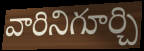
వారినిగూర్చి